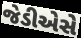
જેડીએસે